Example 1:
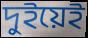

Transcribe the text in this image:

দুইয়েই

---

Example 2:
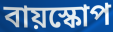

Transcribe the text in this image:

বায়স্কোপ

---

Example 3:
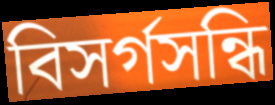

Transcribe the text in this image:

বিসর্গসন্ধি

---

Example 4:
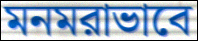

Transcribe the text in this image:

মনমরাভাবে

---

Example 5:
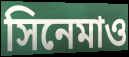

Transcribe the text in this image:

সিনেমাও